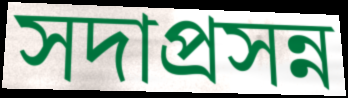
সদাপ্রসন্ন